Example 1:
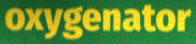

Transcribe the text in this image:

oxygenator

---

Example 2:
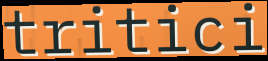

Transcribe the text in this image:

tritici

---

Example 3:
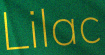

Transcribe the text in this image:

Lilac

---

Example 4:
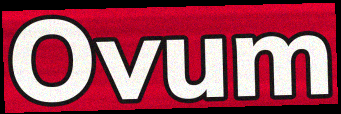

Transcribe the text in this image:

Ovum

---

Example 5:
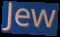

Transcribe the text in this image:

Jew